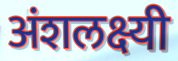
अंशलक्ष्यी